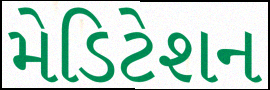
મેડિટેશન